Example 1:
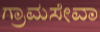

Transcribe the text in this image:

ಗ್ರಾಮಸೇವಾ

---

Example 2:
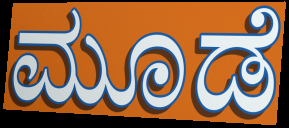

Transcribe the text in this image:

ಮೂಡೆ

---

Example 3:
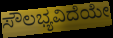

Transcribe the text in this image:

ಸೌಲಭ್ಯವಿದೆಯೇ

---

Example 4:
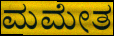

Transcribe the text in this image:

ಮಮೇತ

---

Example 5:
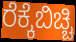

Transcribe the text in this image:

ರೆಕ್ಕೆಬಿಚ್ಚಿ